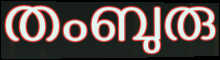
തംബുരു